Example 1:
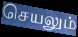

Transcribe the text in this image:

செயலும்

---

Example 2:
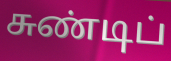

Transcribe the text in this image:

சுண்டிப்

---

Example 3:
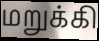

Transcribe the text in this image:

மறுக்கி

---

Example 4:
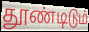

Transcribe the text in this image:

தூண்டிடும்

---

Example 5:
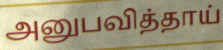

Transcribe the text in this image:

அனுபவித்தாய்